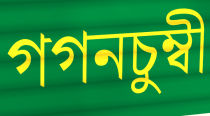
গগনচুম্বী